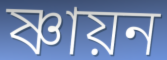
ষ্ণায়ন